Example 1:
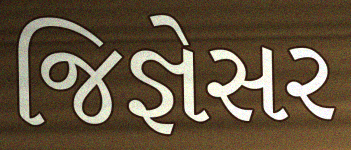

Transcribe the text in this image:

જિજ્ઞેસર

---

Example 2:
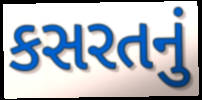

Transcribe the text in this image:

કસરતનું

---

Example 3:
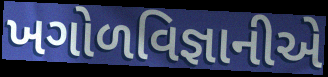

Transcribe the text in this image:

ખગોળવિજ્ઞાનીએ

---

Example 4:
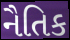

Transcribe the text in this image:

નૈતિક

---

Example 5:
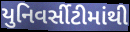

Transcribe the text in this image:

યુનિવર્સીટીમાંથી